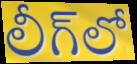
లీగ్‌లో